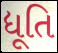
દ્યૂતિ